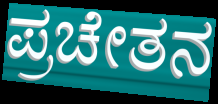
ಪ್ರಚೇತನ